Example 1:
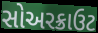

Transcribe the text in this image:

સોઅરક્રાઉટ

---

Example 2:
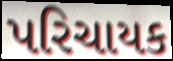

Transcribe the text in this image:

પરિચાયક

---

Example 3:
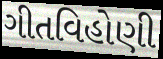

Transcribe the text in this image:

ગીતવિહોણી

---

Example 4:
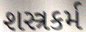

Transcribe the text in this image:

શસ્ત્રકર્મ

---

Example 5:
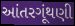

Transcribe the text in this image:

આંતરગૂંથણી